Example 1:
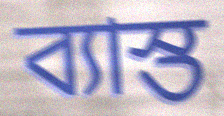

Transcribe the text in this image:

ব্যাস্ত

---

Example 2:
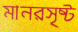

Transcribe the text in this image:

মানৱসৃষ্ট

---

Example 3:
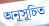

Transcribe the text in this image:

অনূসূচিত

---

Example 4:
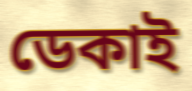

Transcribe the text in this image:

ডেকাই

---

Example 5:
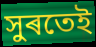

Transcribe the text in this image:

সুৰতেই